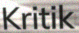
Kritik